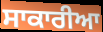
ਸਾਕਾਰੀਆ